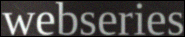
webseries